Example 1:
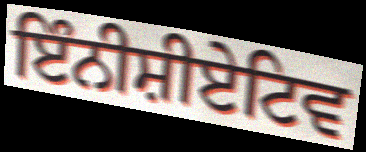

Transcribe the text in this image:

ਇੰਨੀਸ਼ੀਏਟਿਵ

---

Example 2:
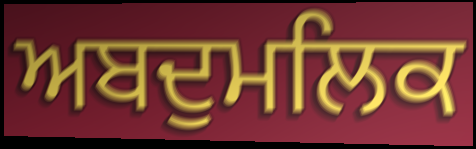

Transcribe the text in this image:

ਅਬਦੁਮਲਿਕ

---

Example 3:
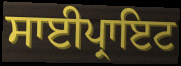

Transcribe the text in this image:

ਸਾਈਪ੍ਰਾਇਟ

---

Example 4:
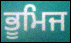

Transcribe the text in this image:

ਭੂਮਿਜ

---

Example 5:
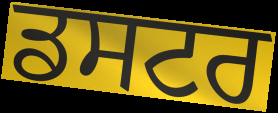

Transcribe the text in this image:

ਡਸਟਰ